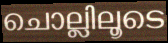
ചൊല്ലിലൂടെ